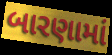
બારણામાં